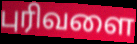
புரிவளை